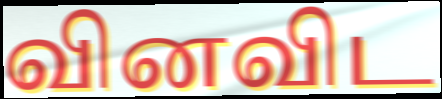
வினவிட